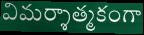
విమర్శాత్మకంగా